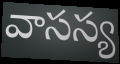
వాసస్య